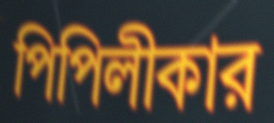
পিপিলীকার